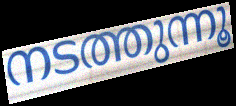
നടത്തുന്നൂ